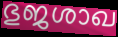
ഭുജശാഖ